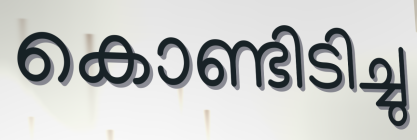
കൊണ്ടിടിച്ചു